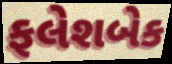
ફલેશબેક